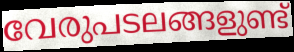
വേരുപടലങ്ങളുണ്ട്